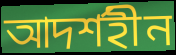
আদর্শহীন